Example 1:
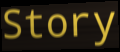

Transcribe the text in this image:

Story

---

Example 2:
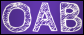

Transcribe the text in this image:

OAB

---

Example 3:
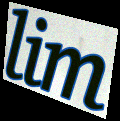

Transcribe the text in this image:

lim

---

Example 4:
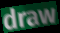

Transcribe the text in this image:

draw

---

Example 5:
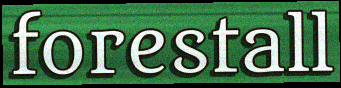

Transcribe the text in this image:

forestall